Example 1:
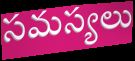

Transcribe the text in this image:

సమస్యలు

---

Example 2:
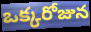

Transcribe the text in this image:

ఒక్కరోజున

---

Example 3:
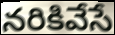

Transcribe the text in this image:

నరికివేసే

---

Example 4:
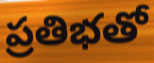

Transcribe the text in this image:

ప్రతిభతో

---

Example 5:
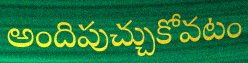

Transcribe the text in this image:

అందిపుచ్చుకోవటం